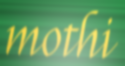
mothi